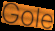
Gole